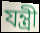
যন্ত্রী